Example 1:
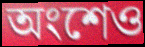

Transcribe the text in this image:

অংশেও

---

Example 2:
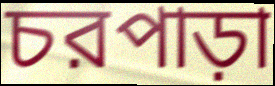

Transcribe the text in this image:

চরপাড়া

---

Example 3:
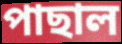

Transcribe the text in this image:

পাছাল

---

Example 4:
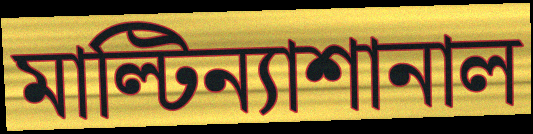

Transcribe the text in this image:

মাল্টিন্যাশানাল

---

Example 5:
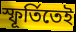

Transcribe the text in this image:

স্ফূর্তিতেই